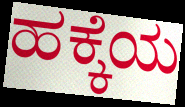
ಹಕ್ಕೆಯ